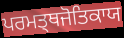
ਪਰਮਤ੍ਥਜੋਤਿਕਾਯ